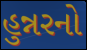
હુન્નરનો